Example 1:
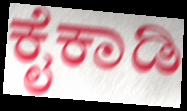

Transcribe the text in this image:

ಕೈಕಾಡಿ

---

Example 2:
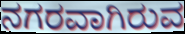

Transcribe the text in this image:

ನಗರವಾಗಿರುವ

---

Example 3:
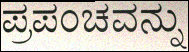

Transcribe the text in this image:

ಪ್ರಪಂಚವನ್ನು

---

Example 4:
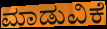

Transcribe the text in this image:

ಮಾಡುವಿಕೆ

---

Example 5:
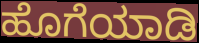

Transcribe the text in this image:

ಹೊಗೆಯಾಡಿ